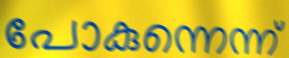
പോകുന്നെന്ന്